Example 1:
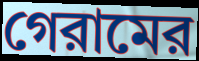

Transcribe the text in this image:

গেরামের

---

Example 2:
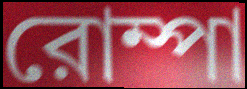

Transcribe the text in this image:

রোম্পা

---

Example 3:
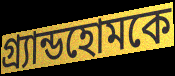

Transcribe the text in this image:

গ্র্যান্ডহোমকে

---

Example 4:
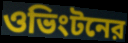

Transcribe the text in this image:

ওভিংটনের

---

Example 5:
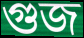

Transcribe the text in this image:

গুজ